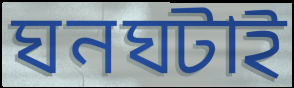
ঘনঘটাই